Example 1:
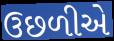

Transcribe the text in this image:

ઉછળીએ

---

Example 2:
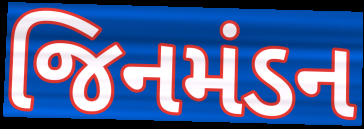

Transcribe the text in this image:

જિનમંડન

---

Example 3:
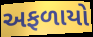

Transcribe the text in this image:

અફળાયો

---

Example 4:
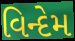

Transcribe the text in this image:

વિન્દેમ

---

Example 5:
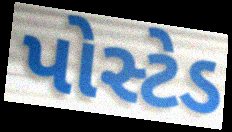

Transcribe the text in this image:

પોસ્ટેડ